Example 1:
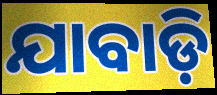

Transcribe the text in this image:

ଯାବାଡ଼ି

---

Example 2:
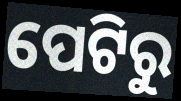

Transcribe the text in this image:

ପେଟିରୁ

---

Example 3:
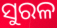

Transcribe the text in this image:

ସୁରଳ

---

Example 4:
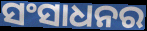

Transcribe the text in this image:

ସଂସାଧନର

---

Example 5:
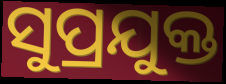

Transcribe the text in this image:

ସୁପ୍ରଯୁକ୍ତ